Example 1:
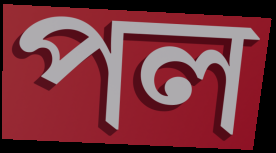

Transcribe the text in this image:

পল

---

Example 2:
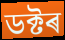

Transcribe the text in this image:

ডক্টৰ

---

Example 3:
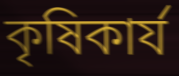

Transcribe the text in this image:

কৃষিকাৰ্য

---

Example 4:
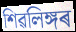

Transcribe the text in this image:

শিৱলিঙ্গৰ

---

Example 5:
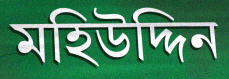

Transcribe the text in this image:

মহিউদ্দিন